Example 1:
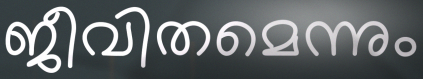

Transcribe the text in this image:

ജീവിതമെന്നും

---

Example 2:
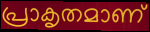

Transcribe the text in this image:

പ്രാകൃതമാണ്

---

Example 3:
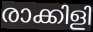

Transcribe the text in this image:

രാക്കിളി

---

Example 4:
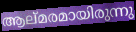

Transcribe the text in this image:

ആല്മരമായിരുന്നു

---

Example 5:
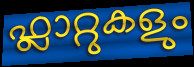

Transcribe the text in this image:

ഫ്ലാറ്റുകളും